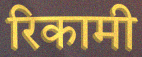
रिकामी